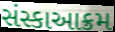
સંસ્કાઆક્રમ